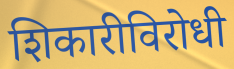
शिकारीविरोधी